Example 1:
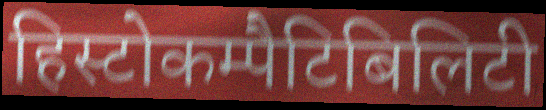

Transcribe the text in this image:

हिस्टोकम्पैटिबिलिटी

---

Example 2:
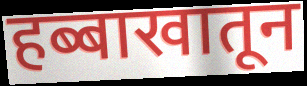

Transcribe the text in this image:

हब्बाखातून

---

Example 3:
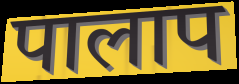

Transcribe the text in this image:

पालाप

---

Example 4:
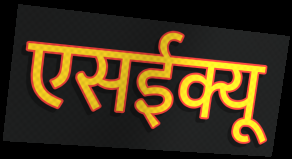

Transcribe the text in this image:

एसईक्यू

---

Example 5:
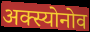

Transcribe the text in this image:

अक्स्योनोव